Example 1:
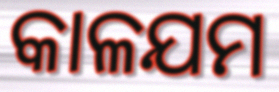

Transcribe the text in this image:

କାଳଯମ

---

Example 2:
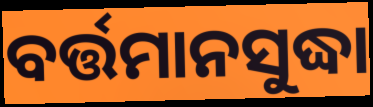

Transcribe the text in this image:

ବର୍ତ୍ତମାନସୁଦ୍ଧା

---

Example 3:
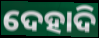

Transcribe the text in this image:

ଦେହାଦି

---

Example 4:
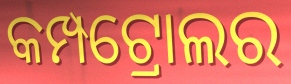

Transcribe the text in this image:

କମ୍ପଟ୍ରୋଲର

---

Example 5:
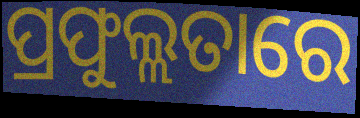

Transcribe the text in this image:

ପ୍ରଫୁଲ୍ଲତାରେ